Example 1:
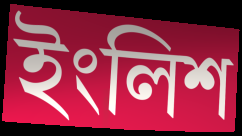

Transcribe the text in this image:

ইংলিশ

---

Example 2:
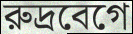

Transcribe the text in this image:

রুদ্রবেগে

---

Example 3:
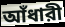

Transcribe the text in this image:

আঁধারী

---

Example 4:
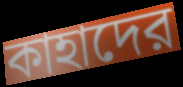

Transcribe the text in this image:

কাহাদের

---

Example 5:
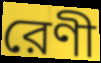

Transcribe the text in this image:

রেণী